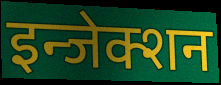
इन्जेक्शन